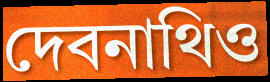
দেবনাথিও